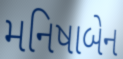
મનિષાબેન